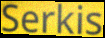
Serkis